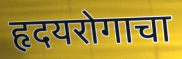
हृदयरोगाचा